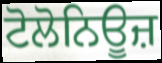
ਟੋਲੋਨਿਊਜ਼